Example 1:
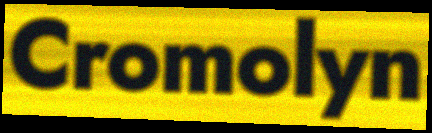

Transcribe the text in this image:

Cromolyn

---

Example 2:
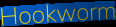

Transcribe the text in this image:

Hookworm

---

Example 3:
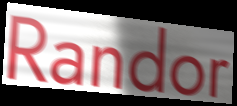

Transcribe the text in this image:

Randor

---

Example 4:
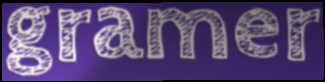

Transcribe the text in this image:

gramer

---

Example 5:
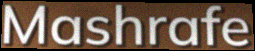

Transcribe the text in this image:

Mashrafe